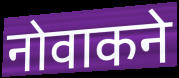
नोवाकने